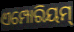
ଏମ୍ପୋରିୟମ୍